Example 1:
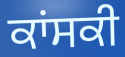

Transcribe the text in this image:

ਕਾਂਸਕੀ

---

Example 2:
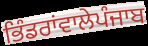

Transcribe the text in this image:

ਭਿੰਡਰਾਂਵਾਲੇਪੰਜਾਬ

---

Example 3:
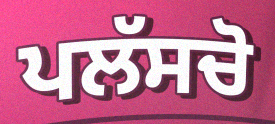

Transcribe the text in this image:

ਪਲੱਸਚੋ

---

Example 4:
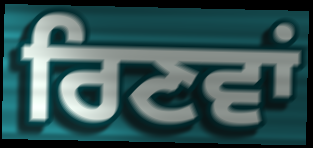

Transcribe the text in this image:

ਰਿਣਵਾਂ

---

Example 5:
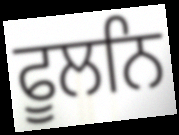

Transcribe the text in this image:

ਫੂਲਨਿ